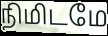
நிமிடமே